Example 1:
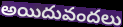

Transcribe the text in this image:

అయిదువందలు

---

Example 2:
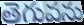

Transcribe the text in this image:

తెగువను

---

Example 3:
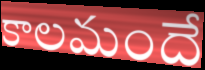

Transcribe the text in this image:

కాలమందే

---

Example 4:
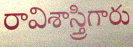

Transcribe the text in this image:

రావిశాస్త్రిగారు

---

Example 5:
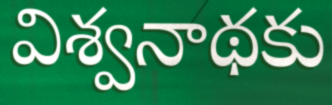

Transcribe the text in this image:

విశ్వనాథకు